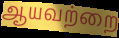
ஆயவற்றை